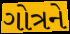
ગોત્રને